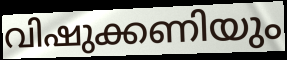
വിഷുക്കണിയും